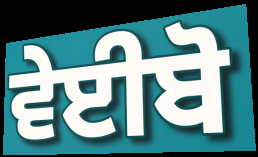
ਵੇਈਬੋ